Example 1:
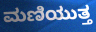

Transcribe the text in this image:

ಮಣಿಯುತ್ತ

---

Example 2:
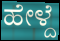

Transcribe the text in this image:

ಹೇಳ್ದೆ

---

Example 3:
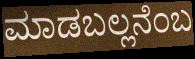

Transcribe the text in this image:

ಮಾಡಬಲ್ಲನೆಂಬ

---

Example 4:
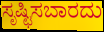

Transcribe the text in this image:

ಸೃಷ್ಟಿಸಬಾರದು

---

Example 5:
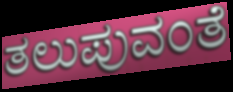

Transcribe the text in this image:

ತಲುಪುವಂತೆ